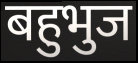
बहुभुज